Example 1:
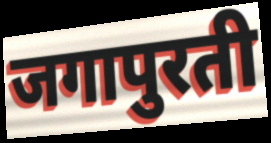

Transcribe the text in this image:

जगापुरती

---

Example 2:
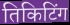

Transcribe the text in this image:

तिकिटिंग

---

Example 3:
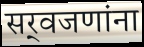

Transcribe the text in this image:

सर्वजणांना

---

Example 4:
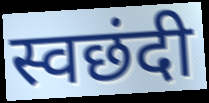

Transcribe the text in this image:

स्वछंदी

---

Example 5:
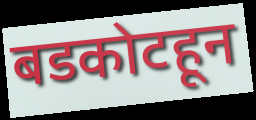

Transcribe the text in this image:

बडकोटहून